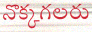
నొక్కగలరు